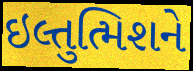
ઇલ્તુત્મિશને